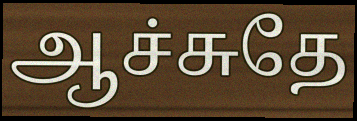
ஆச்சுதே